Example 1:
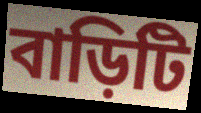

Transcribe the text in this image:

বাড়িটি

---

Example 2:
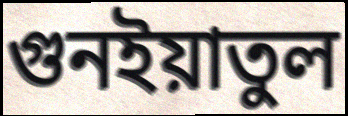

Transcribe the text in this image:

গুনইয়াতুল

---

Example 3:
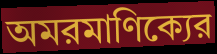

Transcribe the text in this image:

অমরমাণিক্যের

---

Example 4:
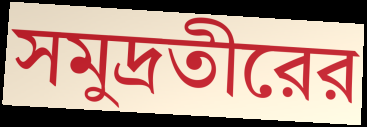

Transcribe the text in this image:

সমুদ্রতীরের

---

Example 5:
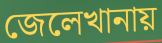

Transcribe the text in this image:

জেলেখানায়